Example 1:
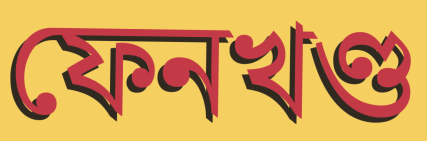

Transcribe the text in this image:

ফেনখণ্ড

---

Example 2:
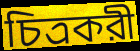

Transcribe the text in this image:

চিত্রকরী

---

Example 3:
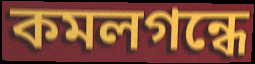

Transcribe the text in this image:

কমলগন্ধে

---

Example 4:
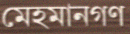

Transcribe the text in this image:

মেহমানগণ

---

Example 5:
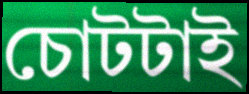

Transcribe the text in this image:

চোটটাই